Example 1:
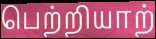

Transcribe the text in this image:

பெற்றியாற்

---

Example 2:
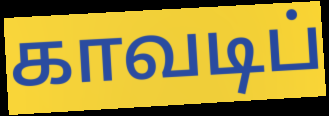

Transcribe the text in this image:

காவடிப்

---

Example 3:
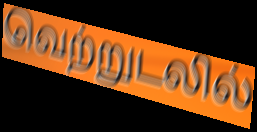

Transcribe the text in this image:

வெற்றுடலில்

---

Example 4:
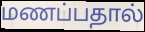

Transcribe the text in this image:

மணப்பதால்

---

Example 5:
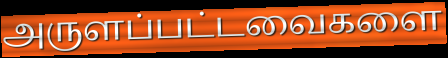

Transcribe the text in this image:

அருளப்பட்டவைகளை